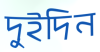
দুইদিন